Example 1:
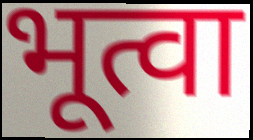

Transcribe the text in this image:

भूत्वा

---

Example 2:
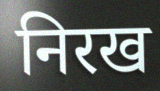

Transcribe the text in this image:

निरख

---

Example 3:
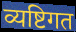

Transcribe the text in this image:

व्यष्टिगत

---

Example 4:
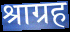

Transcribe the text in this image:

श्राग्रह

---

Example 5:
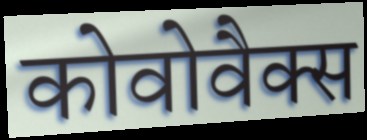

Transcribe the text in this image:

कोवोवैक्स